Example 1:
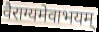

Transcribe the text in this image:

वैराग्यमेवाभयम्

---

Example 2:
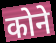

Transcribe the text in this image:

कोने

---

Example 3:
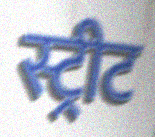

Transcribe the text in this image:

स्ट्रीट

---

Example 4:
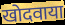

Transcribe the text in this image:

खोदवाया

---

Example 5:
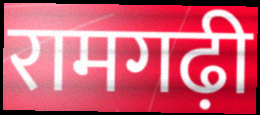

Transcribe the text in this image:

रामगढ़ी